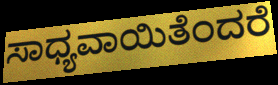
ಸಾಧ್ಯವಾಯಿತೆಂದರೆ